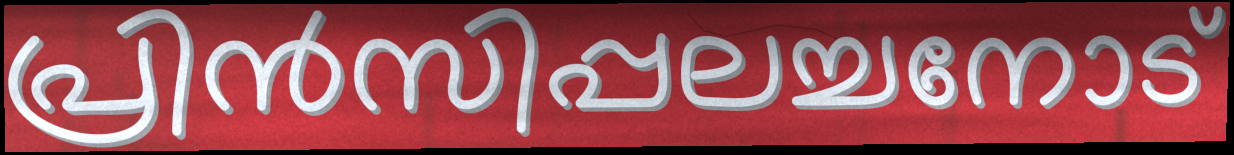
പ്രിൻസിപ്പലച്ചനോട്